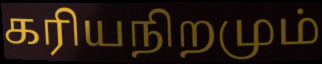
கரியநிறமும்